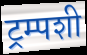
ट्रम्पशी